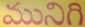
మునిగి